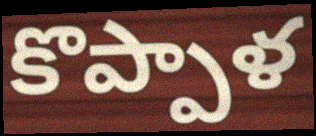
కొప్పాళ